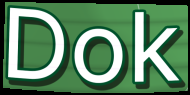
Dok